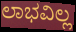
ಲಾಭವಿಲ್ಲ